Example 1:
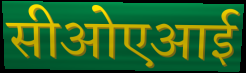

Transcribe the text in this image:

सीओएआई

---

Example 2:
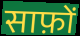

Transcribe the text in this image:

साफ़ों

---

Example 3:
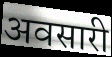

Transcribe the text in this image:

अवसारी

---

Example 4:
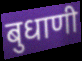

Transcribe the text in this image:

बुधाणी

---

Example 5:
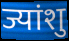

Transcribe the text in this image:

ज्यांशु